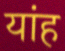
यांह